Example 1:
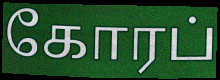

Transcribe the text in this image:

கோரப்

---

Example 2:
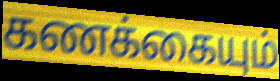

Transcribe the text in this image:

கணக்கையும்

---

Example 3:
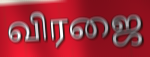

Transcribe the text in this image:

விரஜை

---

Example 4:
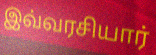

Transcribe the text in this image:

இவ்வரசியார்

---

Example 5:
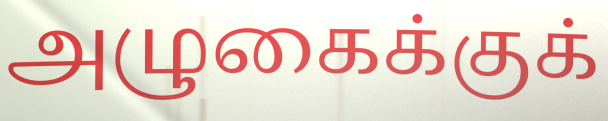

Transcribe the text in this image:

அழுகைக்குக்